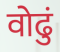
वोढुं